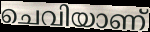
ചെവിയാണ്